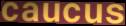
caucus